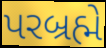
પરબ્રહ્મે